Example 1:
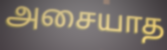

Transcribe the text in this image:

அசையாத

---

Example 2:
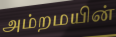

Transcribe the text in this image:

அம்றமயின்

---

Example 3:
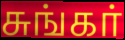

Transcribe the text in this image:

சுங்கர்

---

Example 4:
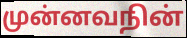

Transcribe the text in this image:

முன்னவநின்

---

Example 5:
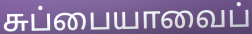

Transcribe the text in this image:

சுப்பையாவைப்